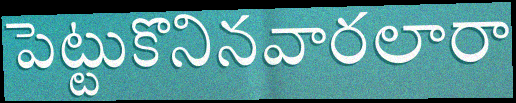
పెట్టుకొనినవారలారా